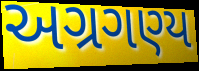
અગ્રગણ્ય